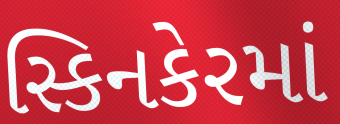
સ્કિનકેરમાં